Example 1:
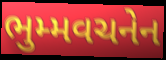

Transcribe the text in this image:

ભુમ્મવચનેન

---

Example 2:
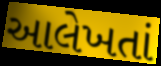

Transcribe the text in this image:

આલેખતાં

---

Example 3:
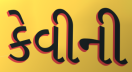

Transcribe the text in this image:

કેવીની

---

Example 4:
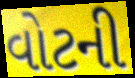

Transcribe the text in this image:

વોટની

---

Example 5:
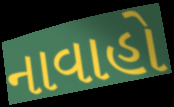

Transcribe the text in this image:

નાવાહો